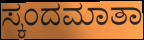
ಸ್ಕಂದಮಾತಾ